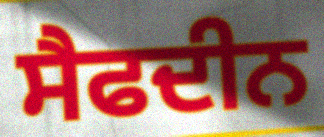
ਸੈਫਦੀਨ